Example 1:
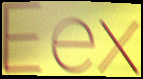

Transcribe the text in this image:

Eex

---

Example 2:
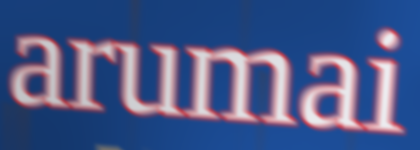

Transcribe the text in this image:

arumai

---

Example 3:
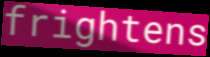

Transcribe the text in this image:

frightens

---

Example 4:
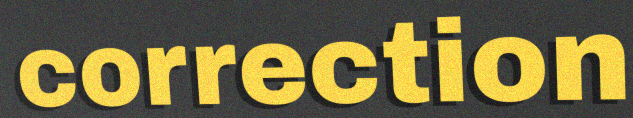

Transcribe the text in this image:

correction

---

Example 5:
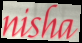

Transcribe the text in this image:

nisha